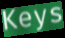
Keys